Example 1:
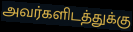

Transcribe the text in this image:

அவர்களிடத்துக்கு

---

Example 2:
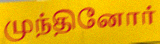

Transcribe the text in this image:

முந்தினோர்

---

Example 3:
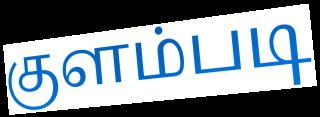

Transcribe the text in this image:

குளம்படி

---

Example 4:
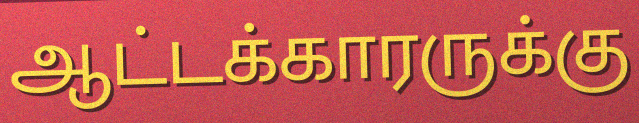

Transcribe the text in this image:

ஆட்டக்காரருக்கு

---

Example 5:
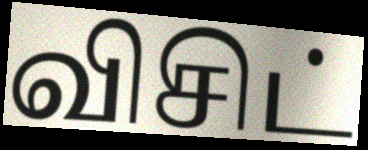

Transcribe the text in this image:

விசிட்